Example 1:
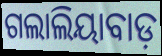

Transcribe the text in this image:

ଗଲାଲିୟାବାଡ଼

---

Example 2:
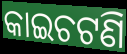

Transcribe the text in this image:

କାଇଚଟଣି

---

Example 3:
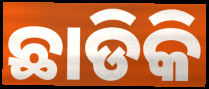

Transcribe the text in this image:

ଛାଡିକି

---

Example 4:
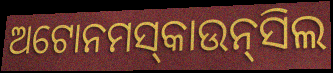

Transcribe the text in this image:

ଅଟୋନମସ୍‌କାଉନ୍‌ସିଲ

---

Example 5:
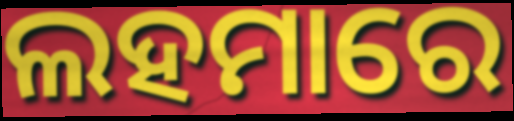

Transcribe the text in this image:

ଲହମାରେ